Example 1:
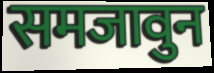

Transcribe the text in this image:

समजावुन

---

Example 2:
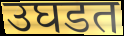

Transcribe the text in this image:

उघडत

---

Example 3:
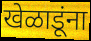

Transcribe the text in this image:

खेळाडूंना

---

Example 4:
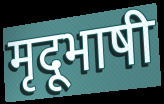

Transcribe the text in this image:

मृदूभाषी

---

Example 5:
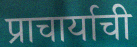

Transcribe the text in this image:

प्राचार्याची